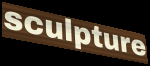
sculpture